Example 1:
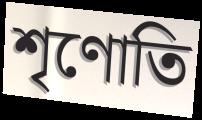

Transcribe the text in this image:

শৃণোতি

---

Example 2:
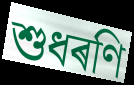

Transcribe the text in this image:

শুধৰণি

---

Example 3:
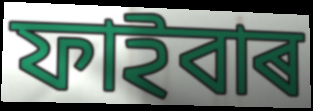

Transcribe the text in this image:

ফাইবাৰ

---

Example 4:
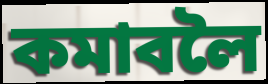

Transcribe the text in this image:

কমাবলৈ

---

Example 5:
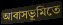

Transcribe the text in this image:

আবাসভূমিতে